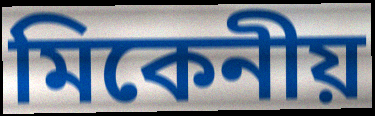
মিকেনীয়